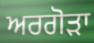
ਅਰਗੋੜਾ